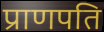
प्राणपति